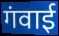
गंवाई